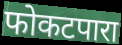
फोकटपारा